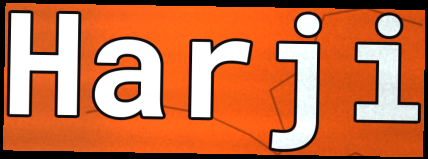
Harji